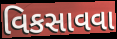
વિકસાવવા